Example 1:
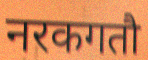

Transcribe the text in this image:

नरकगतौ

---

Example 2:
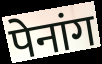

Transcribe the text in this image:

पेनांग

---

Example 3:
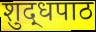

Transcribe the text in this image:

शुद्धपाठ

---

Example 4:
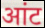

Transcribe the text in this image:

आंट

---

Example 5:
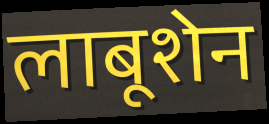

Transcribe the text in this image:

लाबूशेन